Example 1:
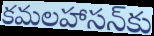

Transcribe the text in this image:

కమలహాసన్‌కు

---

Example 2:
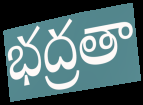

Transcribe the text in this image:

భద్రతా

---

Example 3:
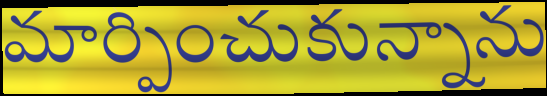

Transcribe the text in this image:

మార్పించుకున్నాను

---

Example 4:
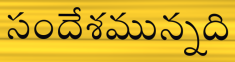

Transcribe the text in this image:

సందేశమున్నది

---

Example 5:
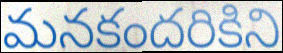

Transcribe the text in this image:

మనకందరికిని